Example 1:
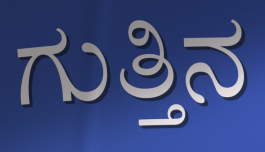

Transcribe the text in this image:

ಗುತ್ತಿನ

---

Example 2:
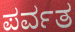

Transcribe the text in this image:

ಪರ್ವತ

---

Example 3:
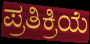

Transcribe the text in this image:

ಪ್ರತಿಕ್ರಿಯೆ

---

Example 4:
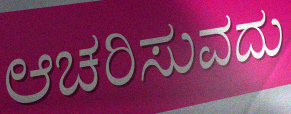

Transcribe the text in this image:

ಆಚರಿಸುವದು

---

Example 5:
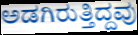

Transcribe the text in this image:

ಅಡಗಿರುತ್ತಿದ್ದವು